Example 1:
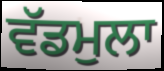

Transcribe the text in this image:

ਵੱਡਮੁਲਾ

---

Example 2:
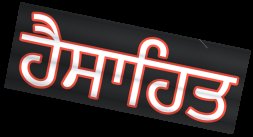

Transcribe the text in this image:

ਹੈਸਾਹਿਤ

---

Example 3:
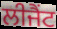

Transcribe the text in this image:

ਲੀਜੈਂਟ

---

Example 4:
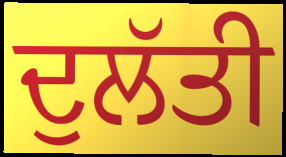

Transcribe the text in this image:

ਦੁਲੱਤੀ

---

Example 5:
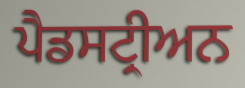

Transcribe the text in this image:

ਪੈਡਸਟ੍ਰੀਅਨ